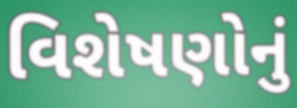
વિશેષણોનું